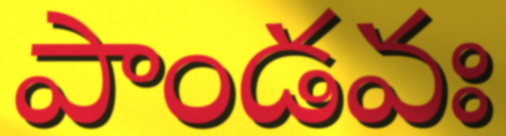
పాండవః